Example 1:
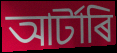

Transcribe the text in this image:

আৰ্টাৰি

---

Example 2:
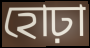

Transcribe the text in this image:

হোঢ়া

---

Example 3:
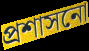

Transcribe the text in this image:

প্ৰশাসনো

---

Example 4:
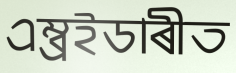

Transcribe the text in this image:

এম্ব্ৰইডাৰীত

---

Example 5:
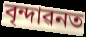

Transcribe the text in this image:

বৃন্দাৱনত